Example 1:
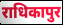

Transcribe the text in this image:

राधिकापुर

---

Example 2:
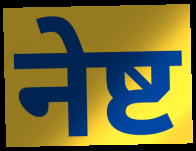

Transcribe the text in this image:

नेष्ट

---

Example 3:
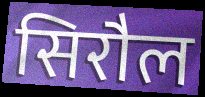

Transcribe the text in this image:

सिरौल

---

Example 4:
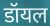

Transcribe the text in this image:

डॉयल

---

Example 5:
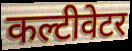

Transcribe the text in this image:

कल्टीवेटर